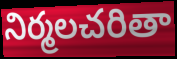
నిర్మలచరితా